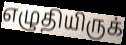
எழுதியிருக்